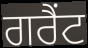
ਗਰੈਂਟ